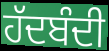
ਹੱਦਬੰਦੀ